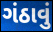
ગંઠાવું